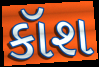
કૉશ